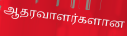
ஆதரவாளர்களான